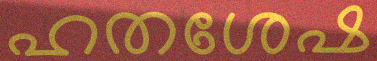
ഹതശേഷ